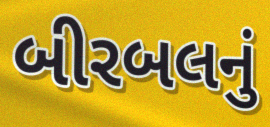
બીરબલનું